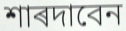
শাৰদাবেন